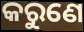
କରୁଣେ